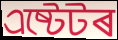
এষ্টেটৰ